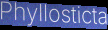
Phyllosticta